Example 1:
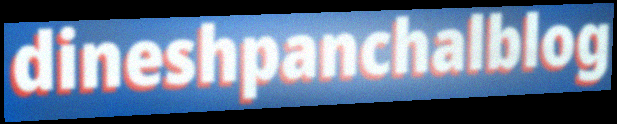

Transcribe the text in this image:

dineshpanchalblog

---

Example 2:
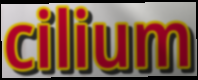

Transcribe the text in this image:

cilium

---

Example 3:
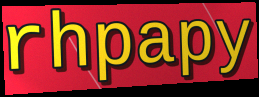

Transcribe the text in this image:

rhpapy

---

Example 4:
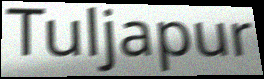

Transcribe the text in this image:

Tuljapur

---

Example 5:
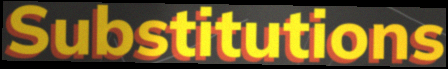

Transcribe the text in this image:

Substitutions